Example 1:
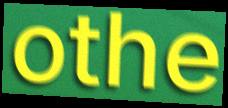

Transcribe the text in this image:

othe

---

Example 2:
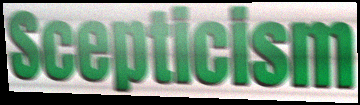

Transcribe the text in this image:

Scepticism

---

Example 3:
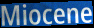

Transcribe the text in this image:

Miocene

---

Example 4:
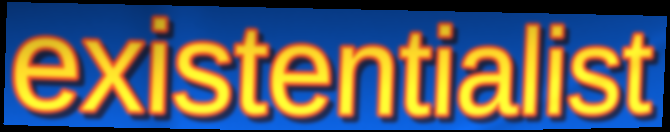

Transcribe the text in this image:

existentialist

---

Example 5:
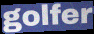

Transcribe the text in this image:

golfer